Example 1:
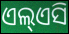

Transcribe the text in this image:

ଏଲ୍ଏସି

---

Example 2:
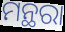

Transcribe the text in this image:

ମନ୍ଥରା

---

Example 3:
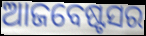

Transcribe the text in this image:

ଆଜବେଷ୍ଟସର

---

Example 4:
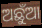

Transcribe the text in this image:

ଅଛୁଁଆ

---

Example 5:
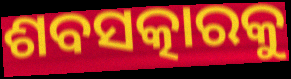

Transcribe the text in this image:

ଶବସତ୍କାରକୁ